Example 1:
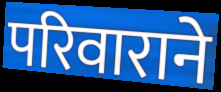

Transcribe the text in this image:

परिवाराने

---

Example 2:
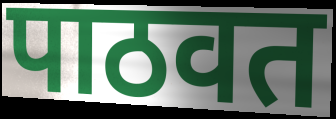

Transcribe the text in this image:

पाठवत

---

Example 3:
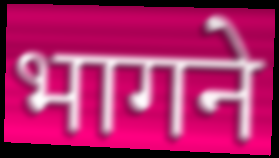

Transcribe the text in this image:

भागने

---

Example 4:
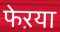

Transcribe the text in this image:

फेऱया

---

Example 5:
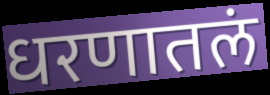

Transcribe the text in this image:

धरणातलं